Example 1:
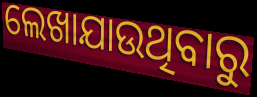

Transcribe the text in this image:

ଲେଖାଯାଉଥିବାରୁ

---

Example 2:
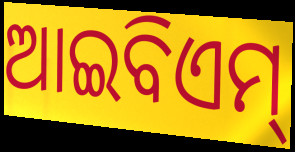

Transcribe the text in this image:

ଆଇବିଏମ୍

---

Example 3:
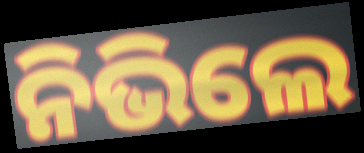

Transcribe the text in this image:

ନିଭିଲେ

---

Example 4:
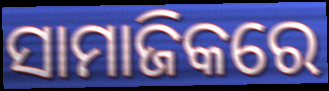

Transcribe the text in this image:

ସାମାଜିକରେ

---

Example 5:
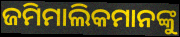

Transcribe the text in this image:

ଜମିମାଲିକମାନଙ୍କୁ